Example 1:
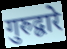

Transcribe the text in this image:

गुरुद्वारे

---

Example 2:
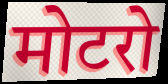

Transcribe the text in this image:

मोटरो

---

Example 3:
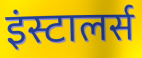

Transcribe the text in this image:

इंस्टालर्स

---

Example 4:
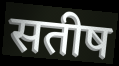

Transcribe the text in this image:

सतीष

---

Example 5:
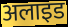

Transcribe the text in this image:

अलाइड